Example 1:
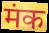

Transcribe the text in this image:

मंक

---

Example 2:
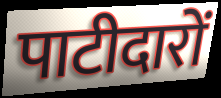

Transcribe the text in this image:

पाटीदारों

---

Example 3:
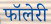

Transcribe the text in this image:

फॉलेरी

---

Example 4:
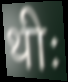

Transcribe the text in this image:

थीः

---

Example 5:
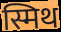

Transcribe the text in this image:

स्मिथ